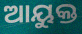
ଆୟୁକ୍ତ